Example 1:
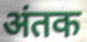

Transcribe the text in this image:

अंतक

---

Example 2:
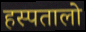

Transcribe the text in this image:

हस्पतालो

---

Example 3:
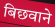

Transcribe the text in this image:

बिछवाने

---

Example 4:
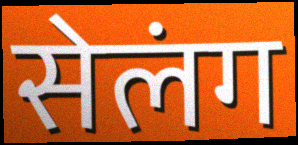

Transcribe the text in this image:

सेलंग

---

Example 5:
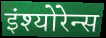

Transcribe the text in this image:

इंश्योरेन्स